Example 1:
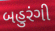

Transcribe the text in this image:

બહુરંગી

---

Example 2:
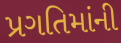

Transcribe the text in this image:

પ્રગતિમાંની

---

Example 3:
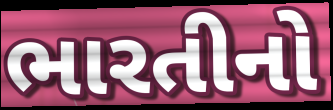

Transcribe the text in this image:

ભારતીનો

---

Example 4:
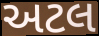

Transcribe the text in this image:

અટલ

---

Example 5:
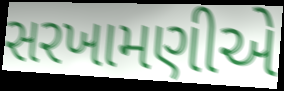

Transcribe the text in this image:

સરખામણીએ